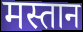
मस्तान